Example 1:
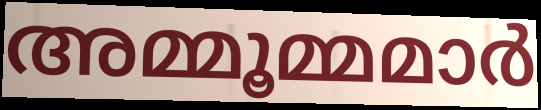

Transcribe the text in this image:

അമ്മൂമ്മമാർ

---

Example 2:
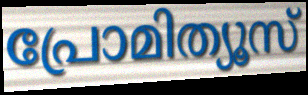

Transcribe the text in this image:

പ്രോമിത്യൂസ്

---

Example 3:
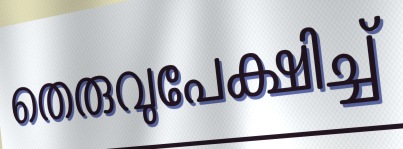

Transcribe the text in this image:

തെരുവുപേക്ഷിച്ച്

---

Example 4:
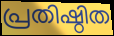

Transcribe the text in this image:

പ്രതിഷ്ഠിത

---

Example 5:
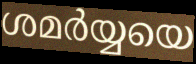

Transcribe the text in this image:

ശമർയ്യയെ